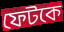
ফেটকে